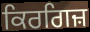
ਕਿਰਗਿਜ਼